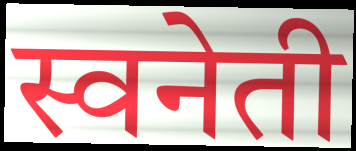
स्वनेती